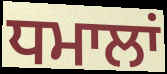
ਧਮਾਲਾਂ